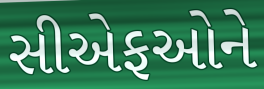
સીએફઓને